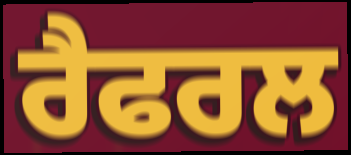
ਰੈਫਰਲ